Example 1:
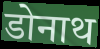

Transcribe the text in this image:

डोनाथ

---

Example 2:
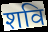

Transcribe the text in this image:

शवि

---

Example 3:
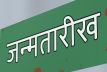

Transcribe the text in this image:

जन्मतारीख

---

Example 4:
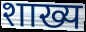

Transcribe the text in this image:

शाख्य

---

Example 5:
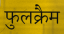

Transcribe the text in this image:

फुलक्रैम